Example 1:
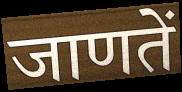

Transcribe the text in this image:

जाणतें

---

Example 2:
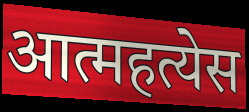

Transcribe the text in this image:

आत्महत्येस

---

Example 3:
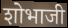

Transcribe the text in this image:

शोभाजी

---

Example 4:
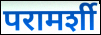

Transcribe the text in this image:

परामर्शी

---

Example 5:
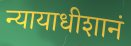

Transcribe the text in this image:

न्यायाधीशानं